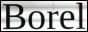
Borel